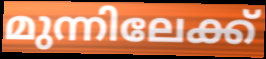
മുന്നിലേക്ക്